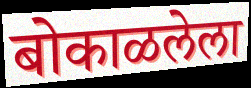
बोकाळलेला